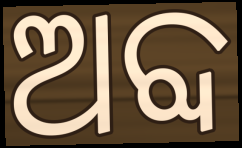
ଅବ୍ଦ